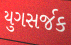
યુગસર્જક